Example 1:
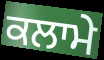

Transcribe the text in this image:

ਕਲਾਮੇ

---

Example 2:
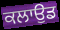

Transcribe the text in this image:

ਕਲਾਉਡ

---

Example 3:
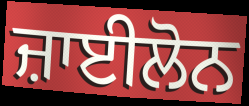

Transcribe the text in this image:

ਜ਼ਾਈਲੋਨ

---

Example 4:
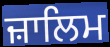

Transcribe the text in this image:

ਜ਼ਾਲਿਮ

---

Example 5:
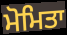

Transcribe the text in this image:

ਮੋਮਿਤਾ